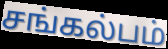
சங்கல்பம்